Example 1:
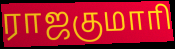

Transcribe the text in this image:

ராஜகுமாரி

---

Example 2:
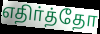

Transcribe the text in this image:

எதிர்த்தோ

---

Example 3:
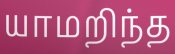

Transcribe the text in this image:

யாமறிந்த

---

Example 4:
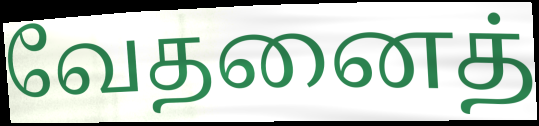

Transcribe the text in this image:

வேதனைத்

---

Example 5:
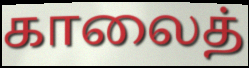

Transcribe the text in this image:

காலைத்